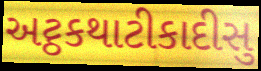
અટ્ઠકથાટીકાદીસુ